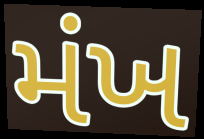
મંખ